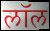
लॉल